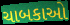
ચાબકાઓ